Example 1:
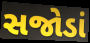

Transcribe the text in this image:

સજોડાં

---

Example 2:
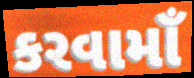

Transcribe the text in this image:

કરવામાઁ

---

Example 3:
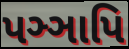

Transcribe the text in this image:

પઞ્ઞાપિ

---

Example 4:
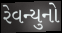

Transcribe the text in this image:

રેવન્યુનો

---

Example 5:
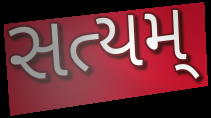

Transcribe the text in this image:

સત્યમ્